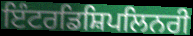
ਇੰਟਰਡਿਸ਼ਿਪਲਿਨਰੀ